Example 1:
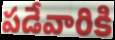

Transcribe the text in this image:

పడేవారికి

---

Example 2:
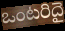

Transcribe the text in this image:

ఒంటరిదై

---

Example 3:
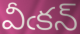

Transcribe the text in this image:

వీఁకన్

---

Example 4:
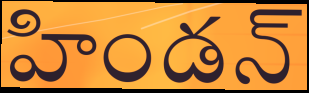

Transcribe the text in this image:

హిండన్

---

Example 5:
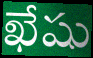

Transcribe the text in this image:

ఖేషు